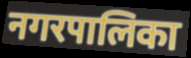
नगरपालिका